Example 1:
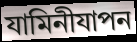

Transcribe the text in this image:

যামিনীযাপন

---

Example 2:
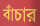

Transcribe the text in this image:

বাঁচার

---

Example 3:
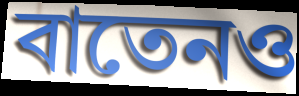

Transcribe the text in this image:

বাতেনও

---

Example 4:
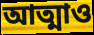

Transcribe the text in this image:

আত্মাও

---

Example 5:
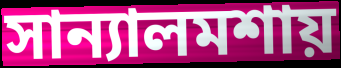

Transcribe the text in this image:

সান্যালমশায়